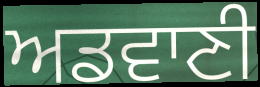
ਅਡਵਾਣੀ